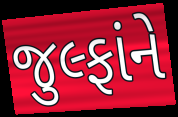
જુલ્ફાંને